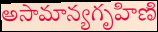
అసామాన్యగృహిణి